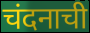
चंदनाची